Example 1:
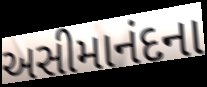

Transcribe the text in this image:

અસીમાનંદના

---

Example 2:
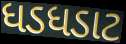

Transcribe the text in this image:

ધડધડાટ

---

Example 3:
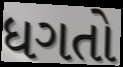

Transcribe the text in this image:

ધગતો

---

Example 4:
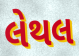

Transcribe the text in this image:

લેથલ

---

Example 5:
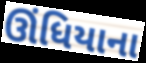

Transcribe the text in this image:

ઊંધિયાના